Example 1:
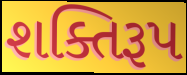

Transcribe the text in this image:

શક્તિરૂપ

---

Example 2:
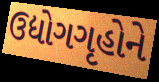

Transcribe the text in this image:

ઉદ્યોગગૃહોને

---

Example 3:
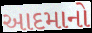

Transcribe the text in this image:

આદમાનો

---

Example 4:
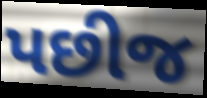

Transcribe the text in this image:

પછીજ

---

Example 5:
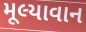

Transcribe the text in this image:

મૂલ્યાવાન